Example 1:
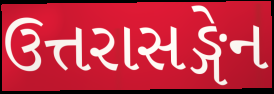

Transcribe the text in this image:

ઉત્તરાસઙ્ગેન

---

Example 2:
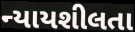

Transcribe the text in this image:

ન્યાયશીલતા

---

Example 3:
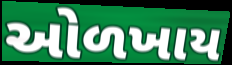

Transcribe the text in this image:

ઓળખાય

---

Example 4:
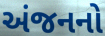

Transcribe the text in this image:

અંજનનો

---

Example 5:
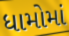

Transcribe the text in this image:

ધામોમાં